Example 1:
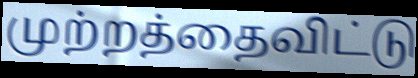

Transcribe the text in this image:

முற்றத்தைவிட்டு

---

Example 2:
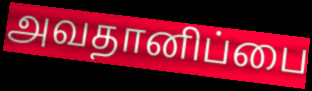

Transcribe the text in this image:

அவதானிப்பை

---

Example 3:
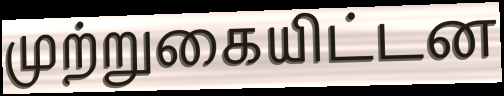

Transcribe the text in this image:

முற்றுகையிட்டன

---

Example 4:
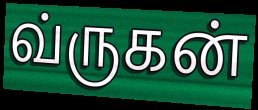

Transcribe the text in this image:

வ்ருகன்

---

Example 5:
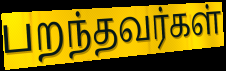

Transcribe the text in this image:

பறந்தவர்கள்